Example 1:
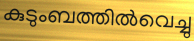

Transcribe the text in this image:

കുടുംബത്തിൽവെച്ചു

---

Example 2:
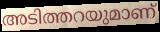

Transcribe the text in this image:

അടിത്തറയുമാണ്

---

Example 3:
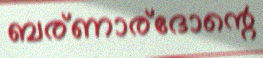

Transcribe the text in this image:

ബര്ണാര്ദോന്റെ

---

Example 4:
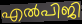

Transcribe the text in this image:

എൽപിജി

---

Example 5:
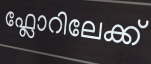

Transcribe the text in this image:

ഫ്ലോറിലേക്ക്